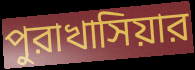
পুরাখাসিয়ার